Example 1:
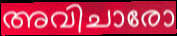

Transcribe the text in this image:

അവിചാരോ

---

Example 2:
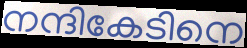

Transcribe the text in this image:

നന്ദികേടിനെ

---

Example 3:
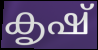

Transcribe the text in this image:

കൃഷ്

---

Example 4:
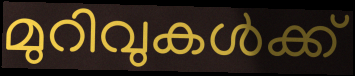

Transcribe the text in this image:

മുറിവുകൾക്ക്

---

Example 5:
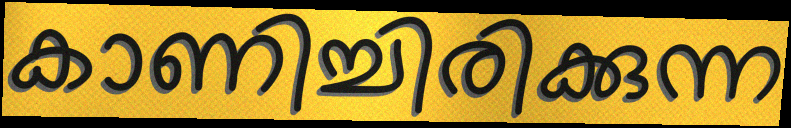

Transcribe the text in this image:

കാണിച്ചിരിക്കുന്ന